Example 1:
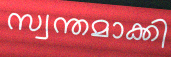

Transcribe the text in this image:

സ്വന്തമാക്കി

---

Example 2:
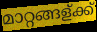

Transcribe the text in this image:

മാറ്റങ്ങള്ക്ക്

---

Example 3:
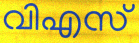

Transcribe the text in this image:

വിഎസ്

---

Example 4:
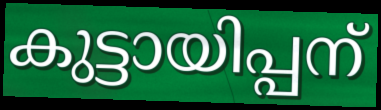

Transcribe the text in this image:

കുട്ടായിപ്പന്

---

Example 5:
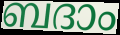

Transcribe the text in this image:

ബദാം